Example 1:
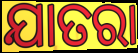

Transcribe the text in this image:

ଯାତରା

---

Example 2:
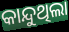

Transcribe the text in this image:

କାନ୍ଦୁଥିଲା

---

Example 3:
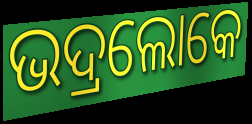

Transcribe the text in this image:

ଭଦ୍ରଲୋକେ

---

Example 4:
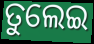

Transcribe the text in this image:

ତୁଲେଇ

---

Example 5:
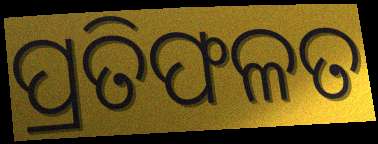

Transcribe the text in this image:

ପ୍ରତିଫଳତ